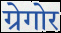
ग्रेगोर